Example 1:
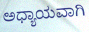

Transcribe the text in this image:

ಅಧ್ಯಾಯವಾಗಿ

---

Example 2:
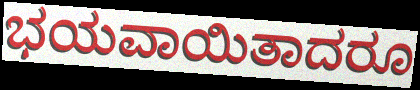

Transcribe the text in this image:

ಭಯವಾಯಿತಾದರೂ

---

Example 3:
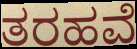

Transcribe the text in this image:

ತರಹವೆ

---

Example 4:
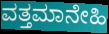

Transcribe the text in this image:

ವತ್ತಮಾನೇಹಿ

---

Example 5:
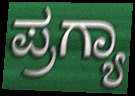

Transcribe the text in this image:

ಪ್ರಗ್ಯಾ